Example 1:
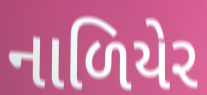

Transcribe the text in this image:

નાળિયેર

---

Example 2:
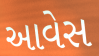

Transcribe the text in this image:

આવેસ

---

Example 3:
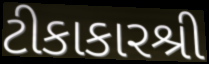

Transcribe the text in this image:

ટીકાકારશ્રી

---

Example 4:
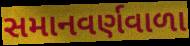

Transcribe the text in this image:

સમાનવર્ણવાળા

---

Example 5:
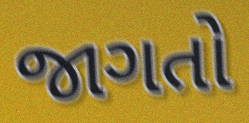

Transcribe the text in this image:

જાગતો